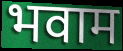
भवाम